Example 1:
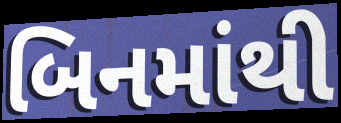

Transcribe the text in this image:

બિનમાંથી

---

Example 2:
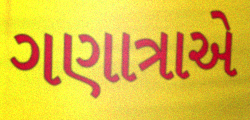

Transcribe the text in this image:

ગણાત્રાએ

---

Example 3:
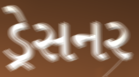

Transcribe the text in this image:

ડ્રેસનર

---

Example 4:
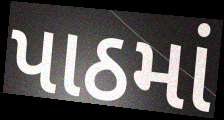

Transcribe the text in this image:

પાઠમાં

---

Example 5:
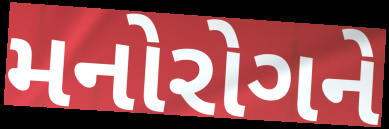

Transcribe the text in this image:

મનોરોગને